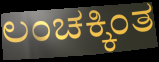
ಲಂಚಕ್ಕಿಂತ